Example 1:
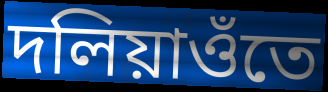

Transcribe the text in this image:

দলিয়াওঁতে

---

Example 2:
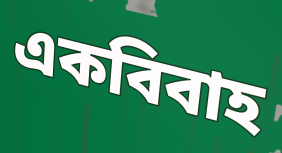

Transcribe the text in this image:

একবিবাহ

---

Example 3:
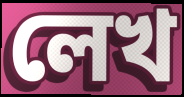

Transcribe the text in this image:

লেখ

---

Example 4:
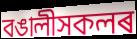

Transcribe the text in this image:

বঙালীসকলৰ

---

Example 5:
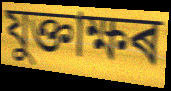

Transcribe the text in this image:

যুক্তাক্ষৰ